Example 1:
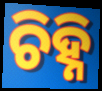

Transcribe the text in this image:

ଚିହ୍ନି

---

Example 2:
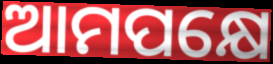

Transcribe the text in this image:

ଆମପକ୍ଷେ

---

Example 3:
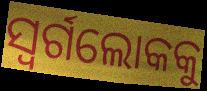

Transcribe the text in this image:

ସ୍ବର୍ଗଲୋକକୁ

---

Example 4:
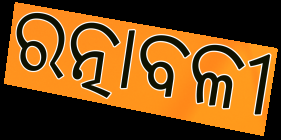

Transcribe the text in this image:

ରତ୍ନାବଳୀ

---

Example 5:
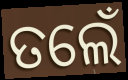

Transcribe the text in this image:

ତଲେଁ